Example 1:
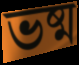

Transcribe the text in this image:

ভষ্ম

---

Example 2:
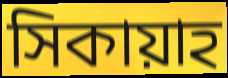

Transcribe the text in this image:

সিকায়াহ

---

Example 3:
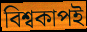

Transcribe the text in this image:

বিশ্বকাপই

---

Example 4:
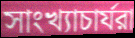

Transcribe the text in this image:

সাংখ্যাচার্যরা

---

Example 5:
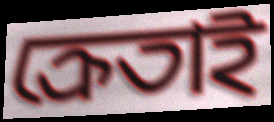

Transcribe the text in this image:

ক্রেতাই